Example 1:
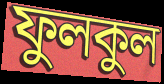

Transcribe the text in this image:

ফুলকুল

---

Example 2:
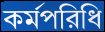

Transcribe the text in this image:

কর্মপরিধি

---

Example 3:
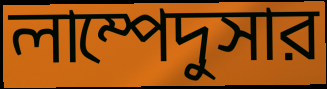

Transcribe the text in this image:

লাম্পেদুসার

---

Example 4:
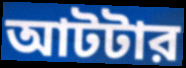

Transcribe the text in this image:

আটটার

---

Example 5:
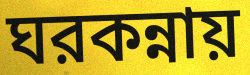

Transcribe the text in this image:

ঘরকন্নায়